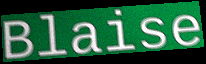
Blaise